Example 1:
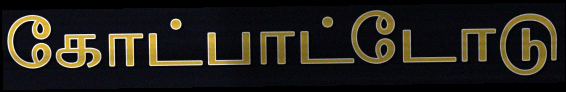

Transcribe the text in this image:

கோட்பாட்டோடு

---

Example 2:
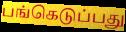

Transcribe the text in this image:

பங்கெடுப்பது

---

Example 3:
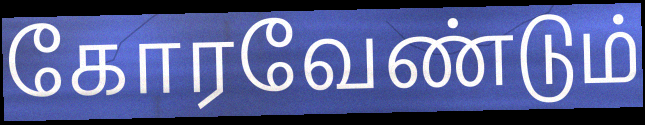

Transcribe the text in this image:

கோரவேண்டும்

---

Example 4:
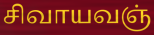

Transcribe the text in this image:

சிவாயவஞ்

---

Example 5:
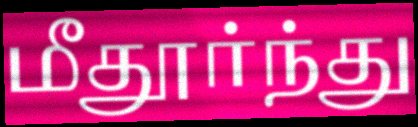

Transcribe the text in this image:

மீதூர்ந்து